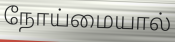
நோய்மையால்